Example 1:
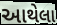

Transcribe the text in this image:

આથેલા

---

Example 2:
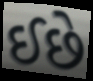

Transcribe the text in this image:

ઈછે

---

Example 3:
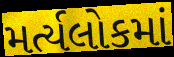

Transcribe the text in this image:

મર્ત્યલોકમાં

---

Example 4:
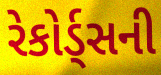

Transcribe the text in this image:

રેકોર્ડ્સની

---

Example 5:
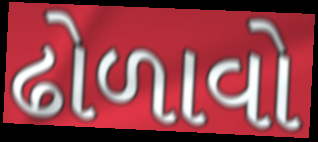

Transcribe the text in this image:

ઢોળાવો